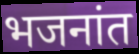
भजनांत